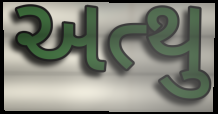
અત્થુ